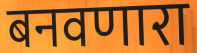
बनवणारा